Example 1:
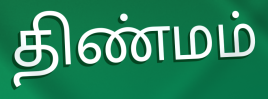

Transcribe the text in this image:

திண்மம்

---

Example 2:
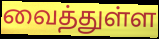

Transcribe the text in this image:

வைத்துள்ள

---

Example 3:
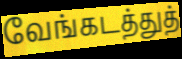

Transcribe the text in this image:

வேங்கடத்துத்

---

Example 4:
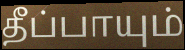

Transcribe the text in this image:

தீப்பாயும்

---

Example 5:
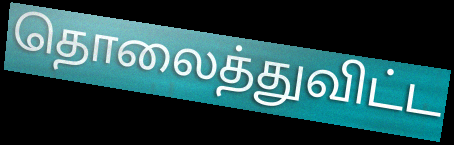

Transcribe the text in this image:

தொலைத்துவிட்ட